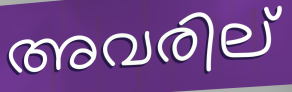
അവരില്